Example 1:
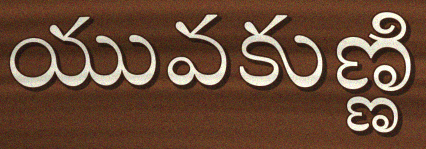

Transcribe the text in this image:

యువకుణ్ణి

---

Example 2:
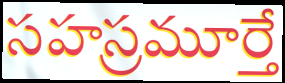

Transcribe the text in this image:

సహస్రమూర్తే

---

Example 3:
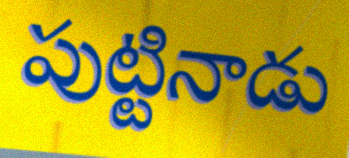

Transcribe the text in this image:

పుట్టినాడు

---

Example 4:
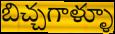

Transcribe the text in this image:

బిచ్చగాళ్ళూ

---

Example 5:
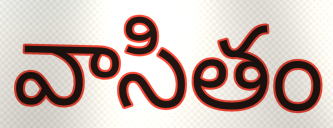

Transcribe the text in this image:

వాసితం